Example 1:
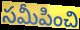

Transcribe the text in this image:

సమీపించి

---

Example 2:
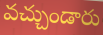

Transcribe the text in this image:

వచ్చుండారు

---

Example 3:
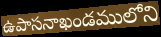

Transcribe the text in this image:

ఉపాసనాఖండములోని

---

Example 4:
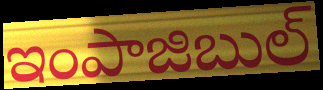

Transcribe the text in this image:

ఇంపాజిబుల్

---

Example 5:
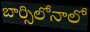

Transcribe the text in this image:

బార్సిలోనాలో